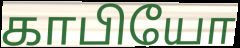
காபியோ